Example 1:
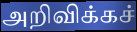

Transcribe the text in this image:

அறிவிக்கச்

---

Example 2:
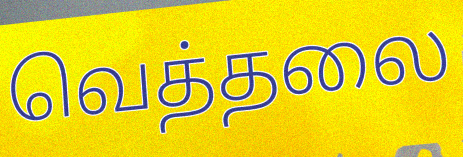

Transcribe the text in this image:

வெத்தலை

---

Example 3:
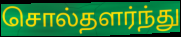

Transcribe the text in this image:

சொல்தளர்ந்து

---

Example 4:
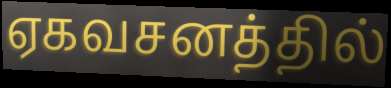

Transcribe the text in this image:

ஏகவசனத்தில்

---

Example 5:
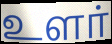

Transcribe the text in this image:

உளர்